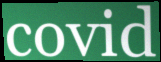
covid